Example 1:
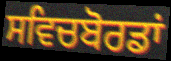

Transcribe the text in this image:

ਸਵਿਚਬੋਰਡਾਂ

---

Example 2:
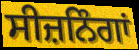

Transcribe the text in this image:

ਸੀਜ਼ਨਿੰਗਾਂ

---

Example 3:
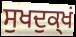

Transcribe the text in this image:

ਸੁਖਦੁਕ੍ਖਂ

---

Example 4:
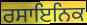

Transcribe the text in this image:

ਰਸਾਇਨਿਕ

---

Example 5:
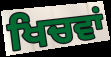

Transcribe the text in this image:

ਖਿਚਵਾਂ